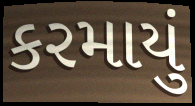
કરમાયું